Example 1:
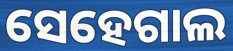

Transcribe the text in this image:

ସେହେଗାଲ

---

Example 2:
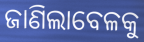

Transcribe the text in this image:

ଜାଣିଲାବେଳକୁ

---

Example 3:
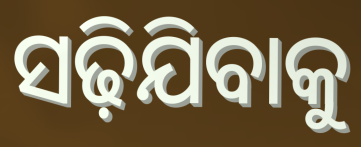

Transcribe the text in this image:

ସଢ଼ିଯିବାକୁ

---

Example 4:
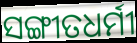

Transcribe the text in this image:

ସଙ୍ଗୀତଧର୍ମୀ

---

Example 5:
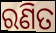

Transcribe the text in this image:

ରଣିତ